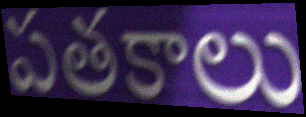
పతకాలు